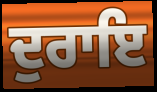
ਦੁਰਾਇ